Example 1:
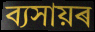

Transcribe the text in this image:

ব্যসায়ৰ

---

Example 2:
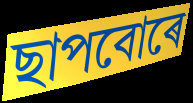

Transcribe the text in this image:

ছাপবোৰে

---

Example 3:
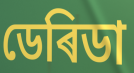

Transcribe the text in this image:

ডেৰিডা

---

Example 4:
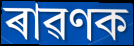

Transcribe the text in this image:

ৰাৱণক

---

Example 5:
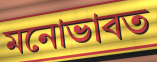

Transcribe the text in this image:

মনোভাবত